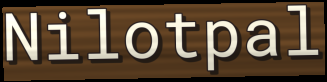
Nilotpal